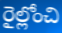
రైల్లోంచి